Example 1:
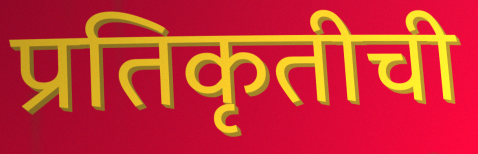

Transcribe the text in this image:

प्रतिकृतीची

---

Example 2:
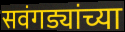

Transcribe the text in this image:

सवंगड्यांच्या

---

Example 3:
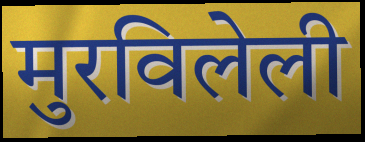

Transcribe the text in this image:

मुरविलेली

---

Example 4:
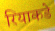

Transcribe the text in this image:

रियाकडे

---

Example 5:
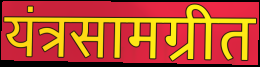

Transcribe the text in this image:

यंत्रसामग्रीत